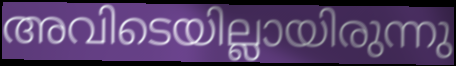
അവിടെയില്ലായിരുന്നു